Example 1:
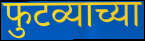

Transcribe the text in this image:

फुटव्याच्या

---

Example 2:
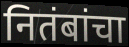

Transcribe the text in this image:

नितंबांचा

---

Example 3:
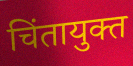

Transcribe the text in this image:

चिंतायुक्त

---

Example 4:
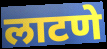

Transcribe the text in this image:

लाटणे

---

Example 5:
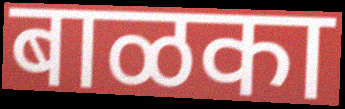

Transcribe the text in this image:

बाळका